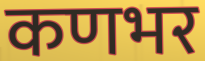
कणभर